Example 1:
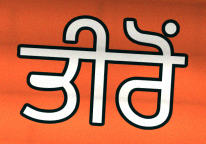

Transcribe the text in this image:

ਤੀਰੋਂ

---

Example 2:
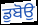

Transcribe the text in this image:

ਡੁਬੋਉ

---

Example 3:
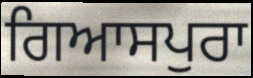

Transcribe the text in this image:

ਗਿਆਸਪੁਰਾ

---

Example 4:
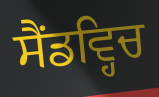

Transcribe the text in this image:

ਸੈਂਡਵ੍ਹਿਚ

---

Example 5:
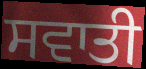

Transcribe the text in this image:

ਸਵਾਤੀ